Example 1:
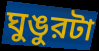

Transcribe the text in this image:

ঘুঙুরটা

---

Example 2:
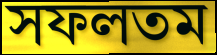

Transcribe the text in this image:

সফলতম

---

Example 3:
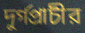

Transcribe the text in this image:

দুর্গপ্রাচীর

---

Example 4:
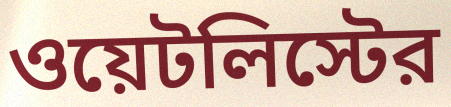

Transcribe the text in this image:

ওয়েটলিস্টের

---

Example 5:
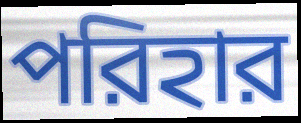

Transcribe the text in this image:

পরিহার